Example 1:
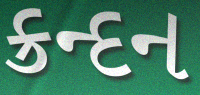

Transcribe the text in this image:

ક્રન્દન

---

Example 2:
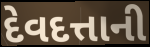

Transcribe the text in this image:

દેવદત્તાની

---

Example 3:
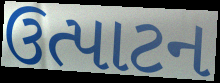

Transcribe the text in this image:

ઉત્પાટન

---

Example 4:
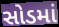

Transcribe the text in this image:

સોડમાં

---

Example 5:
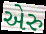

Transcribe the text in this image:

એરુ